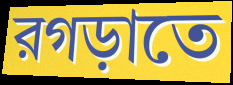
রগড়াতে